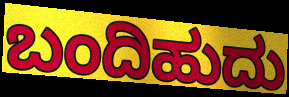
ಬಂದಿಹುದು